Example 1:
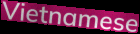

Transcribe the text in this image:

Vietnamese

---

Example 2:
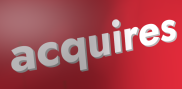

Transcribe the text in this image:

acquires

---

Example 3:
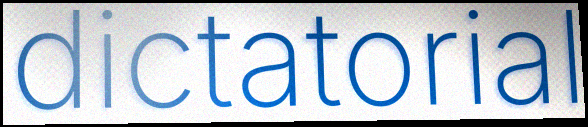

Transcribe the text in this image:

dictatorial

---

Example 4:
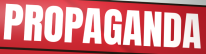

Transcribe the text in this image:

PROPAGANDA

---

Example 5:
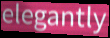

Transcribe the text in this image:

elegantly